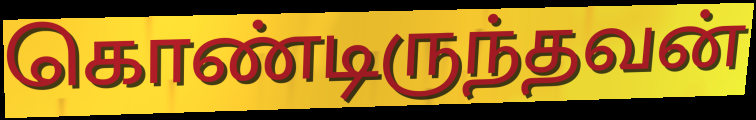
கொண்டிருந்தவன்